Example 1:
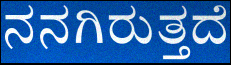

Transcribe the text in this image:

ನನಗಿರುತ್ತದೆ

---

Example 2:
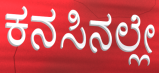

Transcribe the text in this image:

ಕನಸಿನಲ್ಲೇ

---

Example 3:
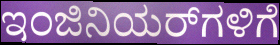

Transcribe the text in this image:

ಇಂಜಿನಿಯರ್‌ಗಳಿಗೆ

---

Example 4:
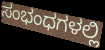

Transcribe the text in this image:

ಸಂಭಂಧಗಳಲ್ಲಿ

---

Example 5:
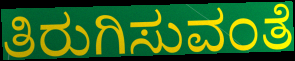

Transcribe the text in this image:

ತಿರುಗಿಸುವಂತೆ